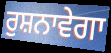
ਰੁਸ਼ਨਾਵੇਗਾ